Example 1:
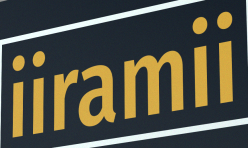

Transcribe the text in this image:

iiramii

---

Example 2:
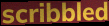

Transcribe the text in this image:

scribbled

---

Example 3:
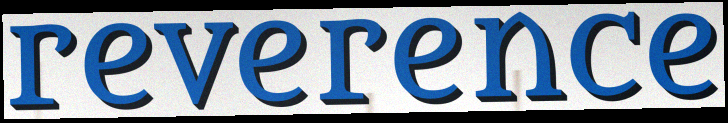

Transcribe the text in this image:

reverence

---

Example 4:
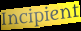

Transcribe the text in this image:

Incipient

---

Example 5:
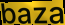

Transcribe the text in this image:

baza